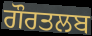
ਗੌਰਤਲਬ